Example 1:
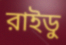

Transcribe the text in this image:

রাইডু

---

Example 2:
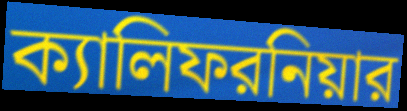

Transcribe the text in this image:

ক্যালিফরনিয়ার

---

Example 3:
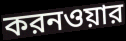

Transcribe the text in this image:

করনওয়ার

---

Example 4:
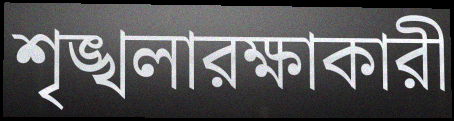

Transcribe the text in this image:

শৃঙ্খলারক্ষাকারী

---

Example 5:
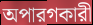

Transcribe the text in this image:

অপারগকারী